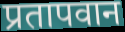
प्रतापवान